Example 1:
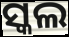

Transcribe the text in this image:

ସ୍କଲ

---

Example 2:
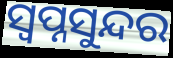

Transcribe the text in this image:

ସ୍ୱପ୍ନସୁନ୍ଦର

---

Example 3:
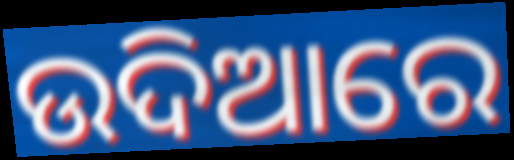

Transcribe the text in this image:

ଉଦିଆରେ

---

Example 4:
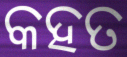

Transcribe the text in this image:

କହତ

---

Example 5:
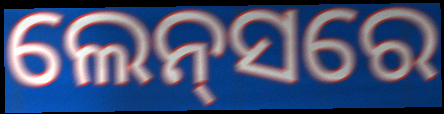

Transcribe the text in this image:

ଲେନ୍‌ସରେ